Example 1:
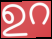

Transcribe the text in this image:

ഉറ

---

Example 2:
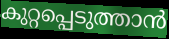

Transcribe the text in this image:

കുറ്റപ്പെടുത്താൻ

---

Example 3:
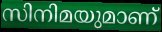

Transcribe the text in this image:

സിനിമയുമാണ്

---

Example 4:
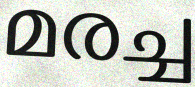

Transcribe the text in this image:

മരച്ച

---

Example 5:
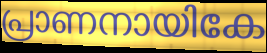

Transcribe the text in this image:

പ്രാണനായികേ